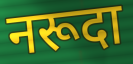
नरूदा